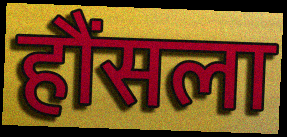
हौंसला